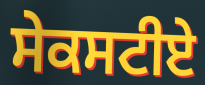
ਸੇਕਸਟੀਏ